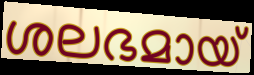
ശലഭമായ്